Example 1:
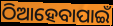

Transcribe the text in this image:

ଠିଆହେବାପାଇଁ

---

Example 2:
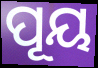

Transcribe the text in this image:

ପୂୟ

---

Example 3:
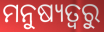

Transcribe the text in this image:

ମନୁଷ୍ୟତ୍ୱରୁ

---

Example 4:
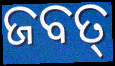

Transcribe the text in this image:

ଜବତ୍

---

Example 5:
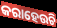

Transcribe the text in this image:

କରାହେଉଚି